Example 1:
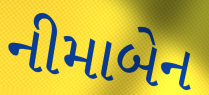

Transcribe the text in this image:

નીમાબેન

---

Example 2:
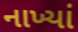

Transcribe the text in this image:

નાખ્યાં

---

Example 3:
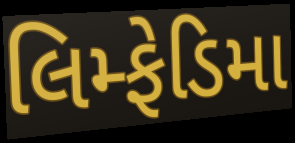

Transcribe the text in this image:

લિમ્ફેડિમા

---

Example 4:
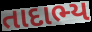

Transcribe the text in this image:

તાદાભ્ય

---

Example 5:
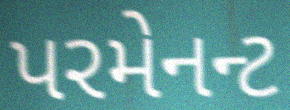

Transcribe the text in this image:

પરમેનન્ટ